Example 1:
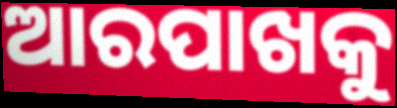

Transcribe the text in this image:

ଆରପାଖକୁ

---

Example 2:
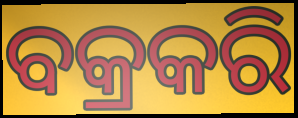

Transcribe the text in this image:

ବକ୍ରକରି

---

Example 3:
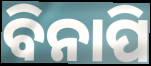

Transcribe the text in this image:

ବିନାପି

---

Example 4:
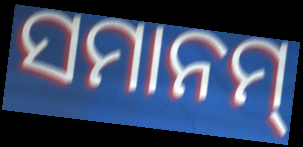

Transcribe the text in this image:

ସମାନମ୍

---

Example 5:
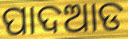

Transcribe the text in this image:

ପାଦଆଡ